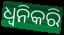
ଧ୍ୱନିକରି